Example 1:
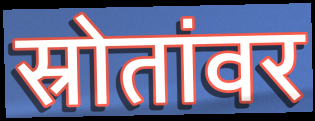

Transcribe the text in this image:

स्रोतांवर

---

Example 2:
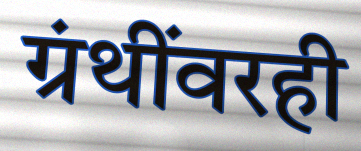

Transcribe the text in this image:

ग्रंथींवरही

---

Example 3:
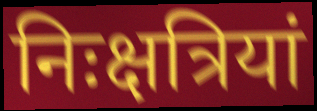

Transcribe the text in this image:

निःक्षत्रियां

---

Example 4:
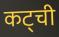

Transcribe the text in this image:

कट्ची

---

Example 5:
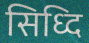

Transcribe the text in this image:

सिध्दि